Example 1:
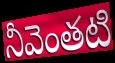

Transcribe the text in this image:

నీవెంతటి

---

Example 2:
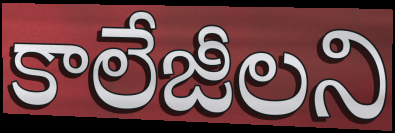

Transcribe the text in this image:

కాలేజీలని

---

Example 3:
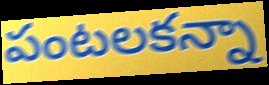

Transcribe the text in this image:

పంటలకన్నా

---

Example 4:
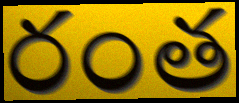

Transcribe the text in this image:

రంత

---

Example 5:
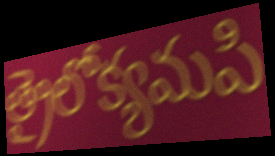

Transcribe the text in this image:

త్రైలోక్యమపి